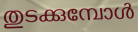
തുടക്കുമ്പോൾ